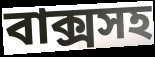
বাক্সসহ